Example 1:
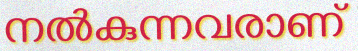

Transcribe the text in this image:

നൽകുന്നവരാണ്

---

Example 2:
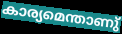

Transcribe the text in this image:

കാര്യമെന്താണു്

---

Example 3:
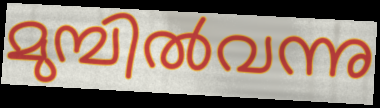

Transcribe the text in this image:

മുമ്പിൽവന്നു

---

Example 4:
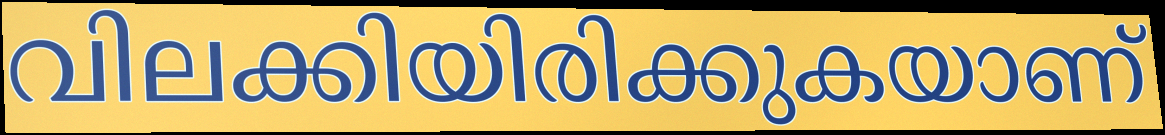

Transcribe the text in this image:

വിലക്കിയിരിക്കുകയാണ്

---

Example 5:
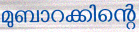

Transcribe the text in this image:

മുബാറക്കിന്റെ